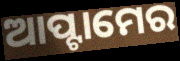
ଆପ୍ଟାମେର